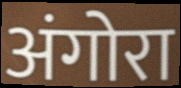
अंगोरा